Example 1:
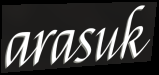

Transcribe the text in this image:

arasuk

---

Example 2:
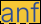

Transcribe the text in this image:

anf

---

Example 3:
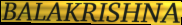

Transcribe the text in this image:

BALAKRISHNA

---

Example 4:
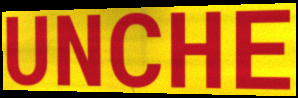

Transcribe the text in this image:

UNCHE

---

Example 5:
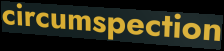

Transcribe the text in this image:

circumspection